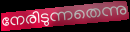
നേരിടുന്നതെന്നു